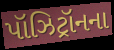
પૉઝિટ્રૉનના